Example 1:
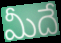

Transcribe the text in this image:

మీదే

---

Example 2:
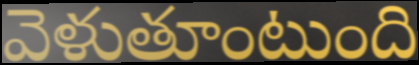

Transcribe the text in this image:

వెళుతూంటుంది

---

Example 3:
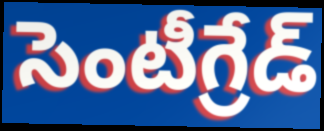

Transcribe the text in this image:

సెంటీగ్రేడ్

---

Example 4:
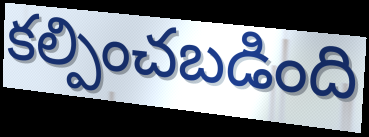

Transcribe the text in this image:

కల్పించబడింది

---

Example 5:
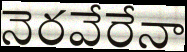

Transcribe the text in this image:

నెరవేరేనా